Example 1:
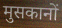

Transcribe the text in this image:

मुसकानों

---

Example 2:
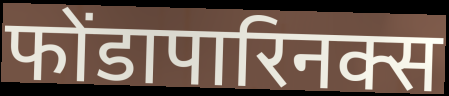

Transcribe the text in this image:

फोंडापारिनक्स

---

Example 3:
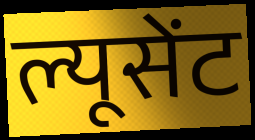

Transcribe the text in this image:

ल्यूसेंट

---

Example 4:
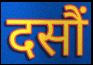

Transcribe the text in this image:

दसौं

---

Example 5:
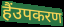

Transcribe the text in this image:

हैंउपकरण